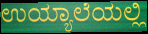
ಉಯ್ಯಾಲೆಯಲ್ಲಿ